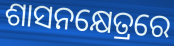
ଶାସନକ୍ଷେତ୍ରରେ